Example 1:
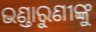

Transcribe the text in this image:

ଭଣ୍ଡାରୁଣୀଙ୍କୁ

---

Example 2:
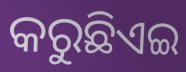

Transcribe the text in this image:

କରୁଛିଏଇ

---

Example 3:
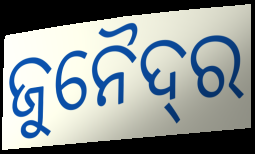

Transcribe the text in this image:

ଜୁନୈଦ୍‌ର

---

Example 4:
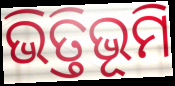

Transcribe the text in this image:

ଭିତ୍ତିଭୂମି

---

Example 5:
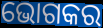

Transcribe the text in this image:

ଭୋଗକର